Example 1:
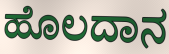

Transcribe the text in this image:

ಹೊಲದಾನ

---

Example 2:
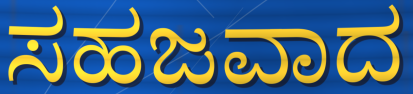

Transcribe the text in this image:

ಸಹಜವಾದ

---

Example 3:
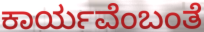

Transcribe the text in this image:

ಕಾರ್ಯವೆಂಬಂತೆ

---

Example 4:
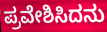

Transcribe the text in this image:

ಪ್ರವೇಶಿಸಿದನು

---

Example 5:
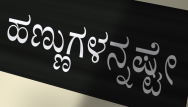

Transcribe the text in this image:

ಹಣ್ಣುಗಳನ್ನಷ್ಟೇ